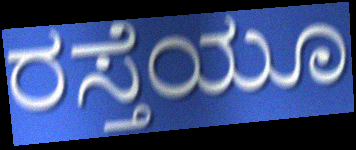
ರಸ್ತೆಯೂ